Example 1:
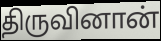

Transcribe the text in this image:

திருவினான்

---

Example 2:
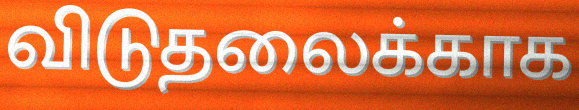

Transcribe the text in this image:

விடுதலைக்காக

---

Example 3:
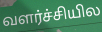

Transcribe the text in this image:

வளர்ச்சியில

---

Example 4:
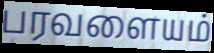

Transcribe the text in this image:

பரவளையம்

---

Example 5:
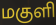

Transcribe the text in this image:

மகுளி